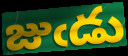
జుఁడు